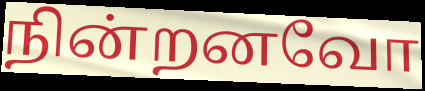
நின்றனவோ